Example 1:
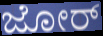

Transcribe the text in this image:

ಜೋರ್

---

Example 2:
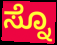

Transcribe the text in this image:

ಸ್ನೊ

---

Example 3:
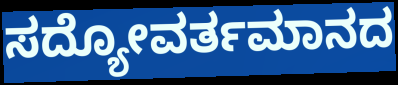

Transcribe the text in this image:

ಸದ್ಯೋವರ್ತಮಾನದ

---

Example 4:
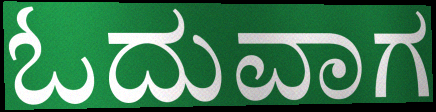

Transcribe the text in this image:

ಓದುವಾಗ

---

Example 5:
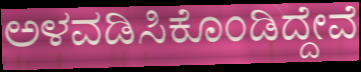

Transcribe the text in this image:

ಅಳವಡಿಸಿಕೊಂಡಿದ್ದೇವೆ